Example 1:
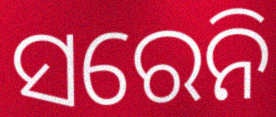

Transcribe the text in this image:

ସରେନି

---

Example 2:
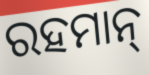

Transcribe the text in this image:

ରହମାନ୍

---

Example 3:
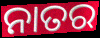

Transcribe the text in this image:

ନାତର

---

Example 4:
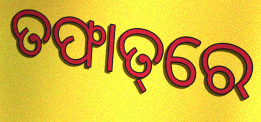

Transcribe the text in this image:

ତଫାତ୍‌ରେ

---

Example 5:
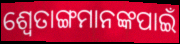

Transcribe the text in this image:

ଶ୍ୱେତାଙ୍ଗମାନଙ୍କପାଇଁ